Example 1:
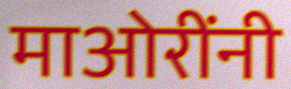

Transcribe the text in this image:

माओरींनी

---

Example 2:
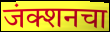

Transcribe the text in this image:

जंक्शनचा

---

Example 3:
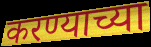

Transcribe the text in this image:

करण्याच्या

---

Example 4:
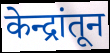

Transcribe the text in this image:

केन्द्रांतून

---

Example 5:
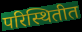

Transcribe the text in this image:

परिस्थितीत